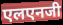
एलएनजी